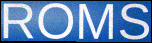
ROMS